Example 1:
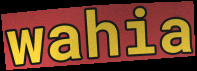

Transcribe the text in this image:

wahia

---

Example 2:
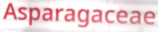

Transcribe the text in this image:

Asparagaceae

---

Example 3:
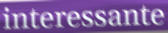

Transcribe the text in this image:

interessante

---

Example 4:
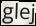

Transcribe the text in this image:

glej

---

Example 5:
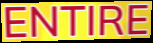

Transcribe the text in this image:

ENTIRE